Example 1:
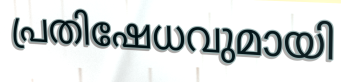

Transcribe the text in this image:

പ്രതിഷേധവുമായി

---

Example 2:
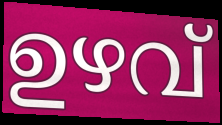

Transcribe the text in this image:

ഉഴവ്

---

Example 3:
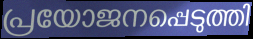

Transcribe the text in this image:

പ്രയോജനപ്പെടുത്തി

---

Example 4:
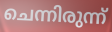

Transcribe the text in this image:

ചെന്നിരുന്ന്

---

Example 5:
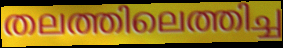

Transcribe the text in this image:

തലത്തിലെത്തിച്ച